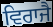
ਵਿਰਾਜੈ